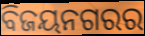
ବିଜୟନଗରର